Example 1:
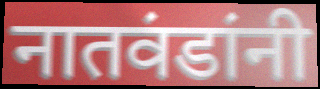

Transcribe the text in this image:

नातवंडांनी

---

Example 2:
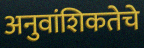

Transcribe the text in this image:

अनुवांशिकतेचे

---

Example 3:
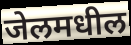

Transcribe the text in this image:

जेलमधील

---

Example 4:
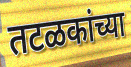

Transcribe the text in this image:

तटळकांच्या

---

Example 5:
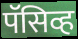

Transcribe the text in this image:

पॅसिव्ह